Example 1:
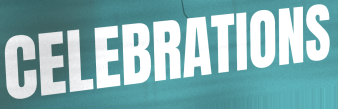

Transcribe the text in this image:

CELEBRATIONS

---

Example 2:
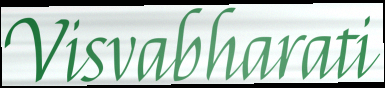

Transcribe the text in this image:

Visvabharati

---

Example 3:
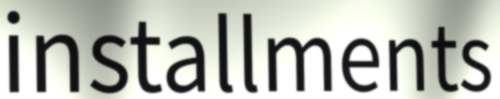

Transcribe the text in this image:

installments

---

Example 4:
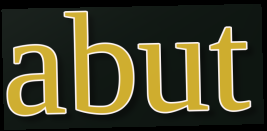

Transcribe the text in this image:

abut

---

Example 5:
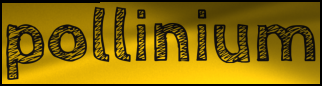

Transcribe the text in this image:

pollinium